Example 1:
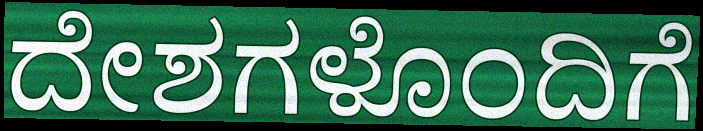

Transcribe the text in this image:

ದೇಶಗಳೊಂದಿಗೆ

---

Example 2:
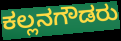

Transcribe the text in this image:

ಕಲ್ಲನಗೌಡರು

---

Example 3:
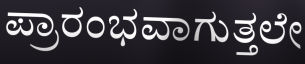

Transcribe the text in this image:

ಪ್ರಾರಂಭವಾಗುತ್ತಲೇ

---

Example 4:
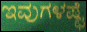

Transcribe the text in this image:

ಇವುಗಳಷ್ಟೆ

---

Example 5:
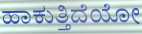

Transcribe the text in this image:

ಹಾಕುತ್ತಿದೆಯೋ